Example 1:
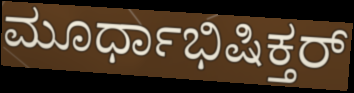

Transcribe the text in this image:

ಮೂರ್ಧಾಭಿಷಿಕ್ತರ್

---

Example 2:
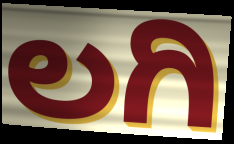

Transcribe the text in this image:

ಲಗಿ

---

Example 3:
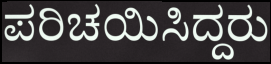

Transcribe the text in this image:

ಪರಿಚಯಿಸಿದ್ದರು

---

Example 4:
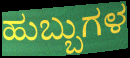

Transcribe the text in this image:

ಹುಬ್ಬುಗಳ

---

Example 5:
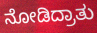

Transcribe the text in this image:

ನೋಡಿದ್ರಾತು